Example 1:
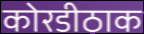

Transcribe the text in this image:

कोरडीठाक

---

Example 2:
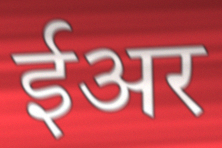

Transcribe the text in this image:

ईअर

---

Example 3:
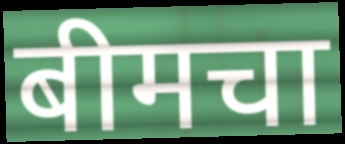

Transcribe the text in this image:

बीमचा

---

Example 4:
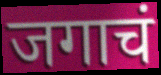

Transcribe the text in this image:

जगाचं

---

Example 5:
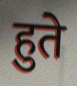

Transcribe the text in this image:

हुते